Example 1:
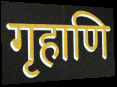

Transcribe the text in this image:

गृहाणि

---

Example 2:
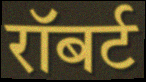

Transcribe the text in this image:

रॉबर्ट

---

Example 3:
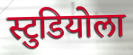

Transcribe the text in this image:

स्टुडियोला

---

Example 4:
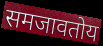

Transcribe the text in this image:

समजावतोय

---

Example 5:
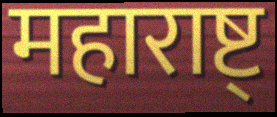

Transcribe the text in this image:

महाराष्ट्